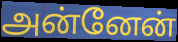
அன்னேன்